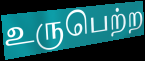
உருபெற்ற